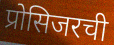
प्रोसिजरची